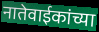
नातेवाईकांच्या